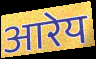
आरेय